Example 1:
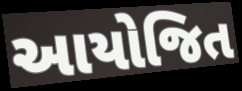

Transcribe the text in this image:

આયોજિત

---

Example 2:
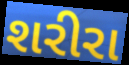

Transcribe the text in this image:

શરીરા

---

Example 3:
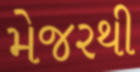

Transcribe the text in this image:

મેજરથી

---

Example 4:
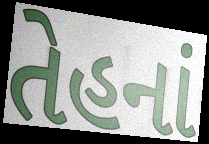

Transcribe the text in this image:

તેહનાં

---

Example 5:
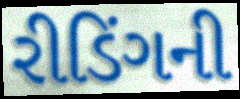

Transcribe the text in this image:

રીડિંગની